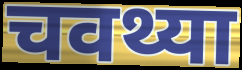
चवथ्या